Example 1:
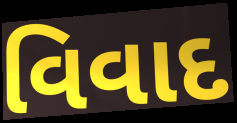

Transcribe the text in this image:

વિવાદ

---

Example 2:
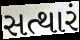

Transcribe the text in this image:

સત્થારં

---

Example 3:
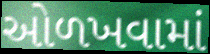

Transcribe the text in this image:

ઓળખવામાં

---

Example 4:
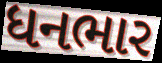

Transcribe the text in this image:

ધનભાર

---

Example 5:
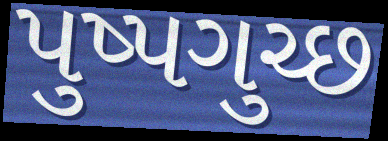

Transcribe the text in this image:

પુષ્પગુચ્છ